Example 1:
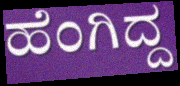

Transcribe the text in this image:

ಹೆಂಗಿದ್ದ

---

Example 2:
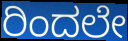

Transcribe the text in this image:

ರಿಂದಲೇ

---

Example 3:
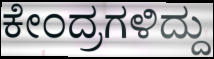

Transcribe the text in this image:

ಕೇಂದ್ರಗಳಿದ್ದು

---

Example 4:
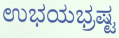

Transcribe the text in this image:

ಉಭಯಭ್ರಷ್ಟ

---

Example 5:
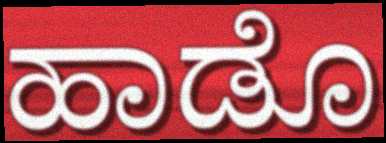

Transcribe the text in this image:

ಹಾಡೊ